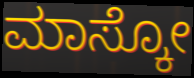
ಮಾಸ್ಕೋ